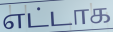
எட்டாக